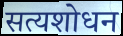
सत्यशोधन